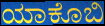
ಯಾಕೊಬಿ